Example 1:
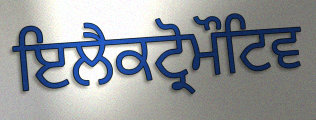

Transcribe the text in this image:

ਇਲੈਕਟ੍ਰੋਮੌਟਿਵ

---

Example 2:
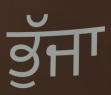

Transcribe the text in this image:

ਭੁੱਜਾ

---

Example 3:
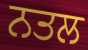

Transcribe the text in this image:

ਨਤਲ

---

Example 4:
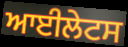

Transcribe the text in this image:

ਆਈਲੇਟਸ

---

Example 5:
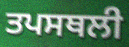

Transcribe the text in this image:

ਤਪਸਥਲੀ